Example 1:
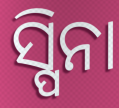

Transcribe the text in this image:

ସ୍ପିନା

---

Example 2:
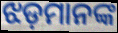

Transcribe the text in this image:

ଝଡ଼ମାନଙ୍କ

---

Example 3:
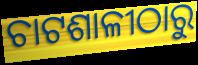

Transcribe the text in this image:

ଚାଟଶାଳୀଠାରୁ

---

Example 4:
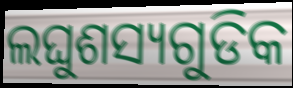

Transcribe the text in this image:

ଲଘୁଶସ୍ୟଗୁଡିକ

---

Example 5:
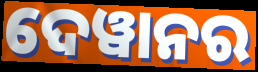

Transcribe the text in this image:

ଦେୱାନର